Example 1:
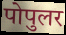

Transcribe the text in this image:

पोपुलर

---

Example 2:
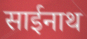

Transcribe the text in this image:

साईनाथ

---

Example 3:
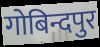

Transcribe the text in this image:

गोबिन्दपुर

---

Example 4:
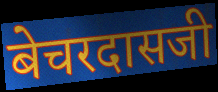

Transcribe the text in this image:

बेचरदासजी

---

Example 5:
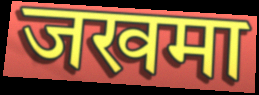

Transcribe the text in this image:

जखमा